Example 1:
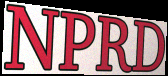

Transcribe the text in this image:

NPRD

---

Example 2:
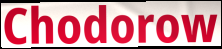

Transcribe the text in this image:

Chodorow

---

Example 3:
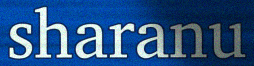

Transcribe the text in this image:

sharanu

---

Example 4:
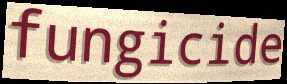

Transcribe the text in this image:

fungicide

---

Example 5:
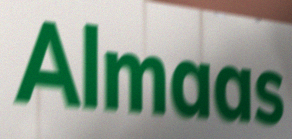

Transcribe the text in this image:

Almaas